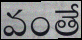
వంతే